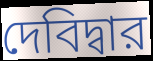
দেবিদ্বার